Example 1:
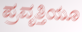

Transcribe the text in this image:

ಪ್ರವೃತ್ತಿಯೂ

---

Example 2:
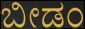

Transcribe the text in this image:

ಬೀಡಂ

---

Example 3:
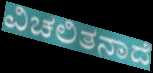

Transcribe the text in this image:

ವಿಚಲಿತನಾದೆ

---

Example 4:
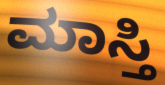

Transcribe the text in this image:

ಮಾಸ್ತಿ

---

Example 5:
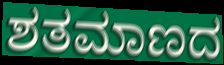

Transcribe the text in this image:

ಶತಮಾಣದ